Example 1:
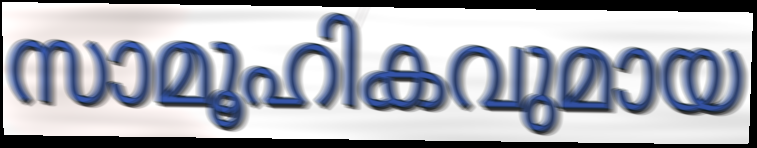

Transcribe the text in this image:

സാമൂഹികവുമായ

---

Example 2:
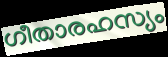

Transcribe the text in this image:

ഗീതാരഹസ്യം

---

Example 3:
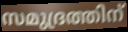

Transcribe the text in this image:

സമുദ്രത്തിന്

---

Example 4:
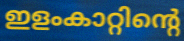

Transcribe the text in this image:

ഇളംകാറ്റിന്റെ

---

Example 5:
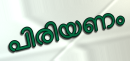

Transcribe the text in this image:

പിരിയണം